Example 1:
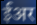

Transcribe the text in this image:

ईअर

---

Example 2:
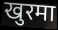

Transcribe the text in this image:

खुरमा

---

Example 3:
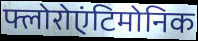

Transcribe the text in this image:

फ्लोरोएंटिमोनिक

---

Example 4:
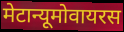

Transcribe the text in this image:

मेटान्यूमोवायरस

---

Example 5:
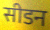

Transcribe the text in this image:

सीडन